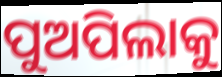
ପୁଅପିଲାକୁ